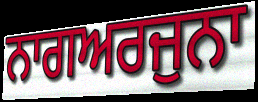
ਨਾਗਅਰਜੁਨਾ